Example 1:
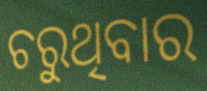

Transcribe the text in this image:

ଚରୁଥିବାର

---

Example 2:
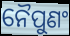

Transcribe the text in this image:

ନୈପୁଣଂ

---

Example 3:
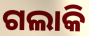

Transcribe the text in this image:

ଗଲାକି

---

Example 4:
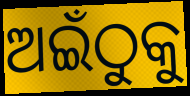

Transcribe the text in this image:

ଅଇଁଠୁକୁ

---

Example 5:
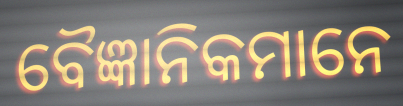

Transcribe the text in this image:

ବୈଜ୍ଞାନିକମାନେ